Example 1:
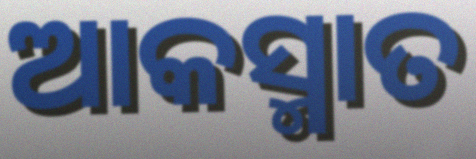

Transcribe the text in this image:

ଆକସ୍ମାତ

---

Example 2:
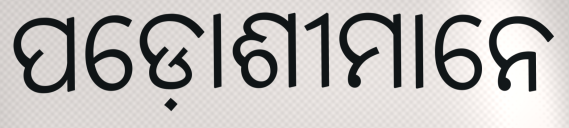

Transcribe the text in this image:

ପଡ଼ୋଶୀମାନେ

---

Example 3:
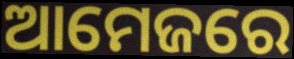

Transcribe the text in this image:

ଆମେଜରେ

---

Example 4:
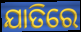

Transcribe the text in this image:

ଯାତିରେ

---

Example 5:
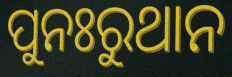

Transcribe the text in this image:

ପୁନଃରୁଥାନ